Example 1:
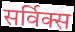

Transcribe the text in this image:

सर्विक्स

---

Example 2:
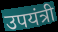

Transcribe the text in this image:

उपयंत्री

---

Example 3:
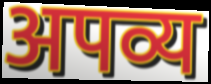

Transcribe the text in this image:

अपव्य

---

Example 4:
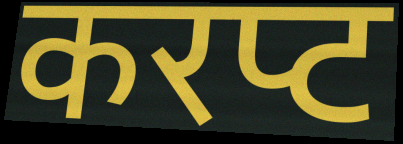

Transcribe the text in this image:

करप्ट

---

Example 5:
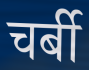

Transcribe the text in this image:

चर्बी